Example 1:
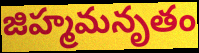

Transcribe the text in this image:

జిహ్మమనృతం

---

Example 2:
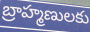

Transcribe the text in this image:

బ్రాహ్మణులకు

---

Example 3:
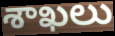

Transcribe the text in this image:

శాఖలు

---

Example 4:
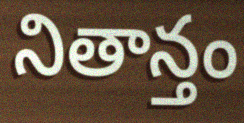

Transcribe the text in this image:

నితాన్తం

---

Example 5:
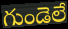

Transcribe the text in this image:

గుండెలే